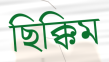
ছিক্কিম